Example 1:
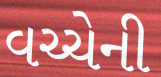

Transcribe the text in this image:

વચ્ચેની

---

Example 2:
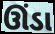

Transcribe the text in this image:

ઊંડા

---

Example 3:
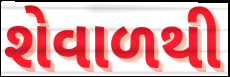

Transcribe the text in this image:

શેવાળથી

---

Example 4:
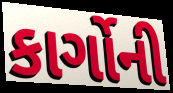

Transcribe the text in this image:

કાર્ગોની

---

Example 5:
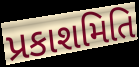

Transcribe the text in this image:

પ્રકાશમિતિ